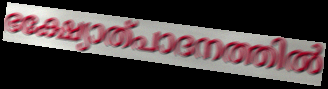
ഭക്ഷ്യോത്പാദനത്തിൽ